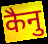
कैनु